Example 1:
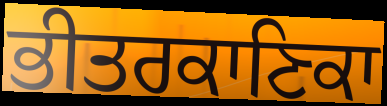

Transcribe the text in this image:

ਭੀਤਰਕਾਣਿਕਾ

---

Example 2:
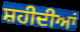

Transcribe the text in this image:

ਸ਼ਹੀਦੀਆਂ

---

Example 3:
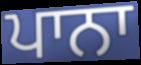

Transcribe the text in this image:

ਪਾਨਾ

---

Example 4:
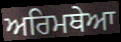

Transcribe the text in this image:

ਅਰਿਮਥੇਆ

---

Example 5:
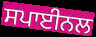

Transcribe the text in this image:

ਸਪਾਈਨਲ